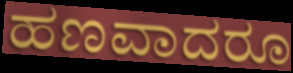
ಹಣವಾದರೂ